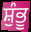
ਸ਼ੁੰਭੂ